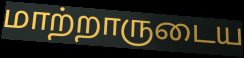
மாற்றாருடைய